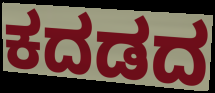
ಕದಡದ